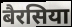
बैरसिया